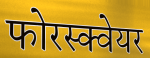
फोरस्क्वेयर